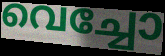
വെച്ചോ